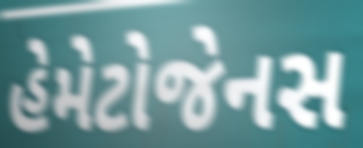
હેમેટોજેનસ